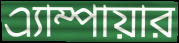
এ্যাম্পায়ার